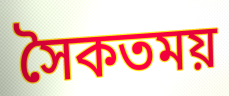
সৈকতময়